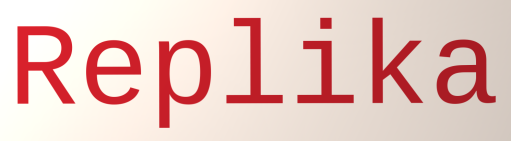
Replika